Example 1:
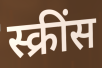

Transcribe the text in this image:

स्क्रींस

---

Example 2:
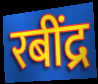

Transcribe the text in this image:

रबींद्र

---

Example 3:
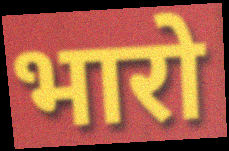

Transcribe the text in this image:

भारो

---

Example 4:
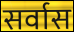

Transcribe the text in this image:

सर्वास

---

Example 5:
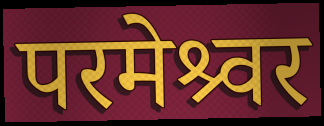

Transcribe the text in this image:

परमेश्र्वर